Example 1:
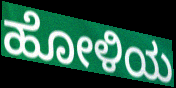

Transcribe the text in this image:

ಹೋಳಿಯ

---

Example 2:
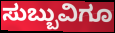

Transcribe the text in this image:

ಸುಬ್ಬುವಿಗೂ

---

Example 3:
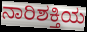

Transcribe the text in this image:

ನಾರಿಶಕ್ತಿಯ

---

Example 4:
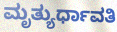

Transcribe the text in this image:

ಮೃತ್ಯುರ್ಧಾವತಿ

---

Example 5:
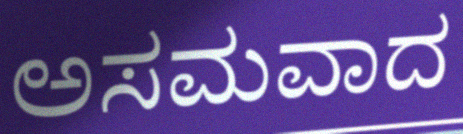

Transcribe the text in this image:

ಅಸಮವಾದ